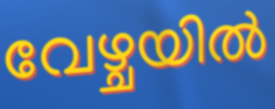
വേഴ്ചയിൽ